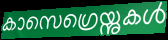
കാസെഗ്രെയ്നുകൾ